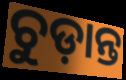
ଚୁଡ଼ାନ୍ତ